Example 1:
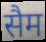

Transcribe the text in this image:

सैम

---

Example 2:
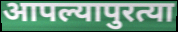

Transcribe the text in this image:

आपल्यापुरत्या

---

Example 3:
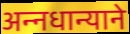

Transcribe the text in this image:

अन्नधान्याने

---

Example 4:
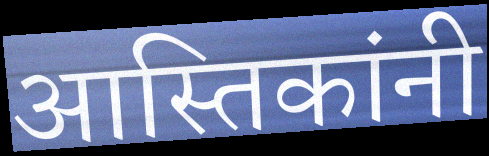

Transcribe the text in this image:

आस्तिकांनी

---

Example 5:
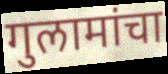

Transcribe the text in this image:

गुलामांचा